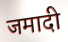
जमादी